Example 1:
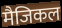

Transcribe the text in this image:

मैजिकल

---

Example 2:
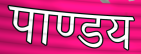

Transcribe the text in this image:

पाण्डय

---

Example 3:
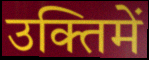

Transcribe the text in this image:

उक्तिमें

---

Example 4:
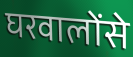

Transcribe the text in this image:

घरवालोंसे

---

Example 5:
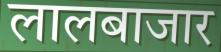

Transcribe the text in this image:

लालबाजार